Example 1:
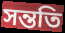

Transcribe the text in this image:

সন্ততি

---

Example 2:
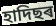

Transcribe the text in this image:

হাদিছৰ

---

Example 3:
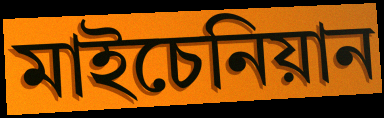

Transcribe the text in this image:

মাইচেনিয়ান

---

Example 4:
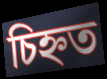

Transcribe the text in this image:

চিহ্নত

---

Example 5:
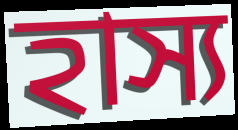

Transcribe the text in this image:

হাস্য